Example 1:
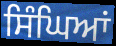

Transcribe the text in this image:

ਸਿੰਘਿਆਂ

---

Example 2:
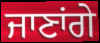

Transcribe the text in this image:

ਜਾਣਾਂਗੇ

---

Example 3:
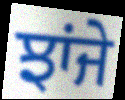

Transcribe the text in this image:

ਝਾਂਜੇ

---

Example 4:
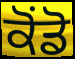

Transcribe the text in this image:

ਕੋਂਡੋ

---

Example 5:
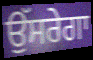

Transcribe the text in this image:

ਉੱਸਰੇਗਾ